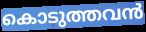
കൊടുത്തവൻ